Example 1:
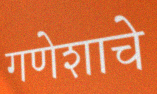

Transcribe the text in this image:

गणेशाचे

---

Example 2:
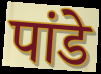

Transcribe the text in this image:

पांडे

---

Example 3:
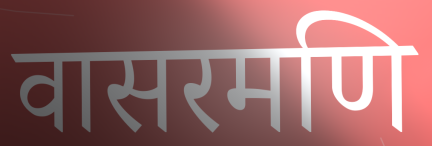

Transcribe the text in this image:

वासरमणि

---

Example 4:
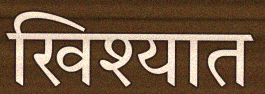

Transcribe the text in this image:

खिश्यात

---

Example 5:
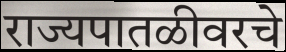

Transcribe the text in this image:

राज्यपातळीवरचे